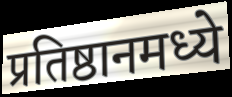
प्रतिष्ठानमध्ये